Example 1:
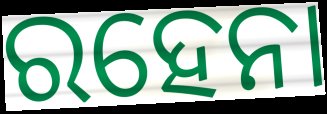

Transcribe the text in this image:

ରହେନା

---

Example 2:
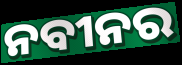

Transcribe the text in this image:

ନବୀନର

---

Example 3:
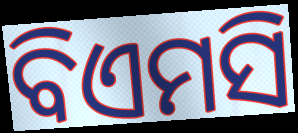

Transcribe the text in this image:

ବିଏମସି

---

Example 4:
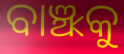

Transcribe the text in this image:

ବାଞ୍ଝକୁ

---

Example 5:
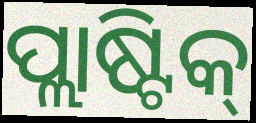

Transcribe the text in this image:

ପ୍ଲାଷ୍ଟିକ୍